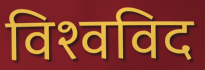
विश्वविद